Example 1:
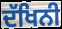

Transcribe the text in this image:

ਦੱਖਿਨੀ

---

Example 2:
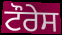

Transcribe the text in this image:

ਟੌਰੇਸ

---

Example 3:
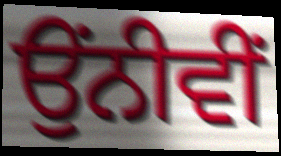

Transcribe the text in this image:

ਉੰਨੀਵੀਂ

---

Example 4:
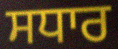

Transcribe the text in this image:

ਸਧਾਰ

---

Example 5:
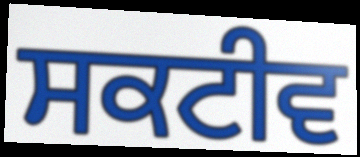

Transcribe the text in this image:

ਸਕਟੀਵ